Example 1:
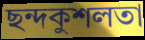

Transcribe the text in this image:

ছন্দকুশলতা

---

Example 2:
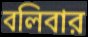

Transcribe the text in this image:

বলিবার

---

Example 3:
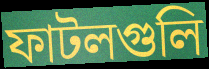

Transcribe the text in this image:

ফাটলগুলি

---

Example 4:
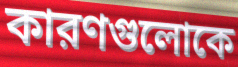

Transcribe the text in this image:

কারণগুলোকে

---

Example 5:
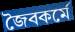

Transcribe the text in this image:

জৈবকর্মে